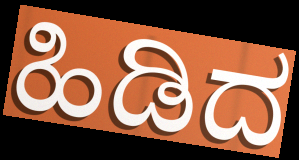
ಹಿಡಿದ